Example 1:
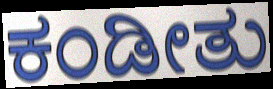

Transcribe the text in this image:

ಕಂಡೀತು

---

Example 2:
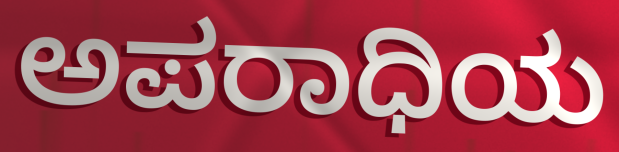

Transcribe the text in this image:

ಅಪರಾಧಿಯ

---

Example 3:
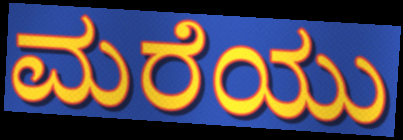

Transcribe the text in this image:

ಮರೆಯು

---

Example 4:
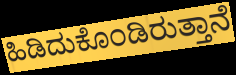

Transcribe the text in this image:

ಹಿಡಿದುಕೊಂಡಿರುತ್ತಾನೆ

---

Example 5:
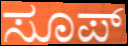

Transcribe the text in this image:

ಸೂಪ್